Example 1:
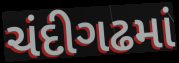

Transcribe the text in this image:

ચંદીગઢમાં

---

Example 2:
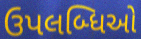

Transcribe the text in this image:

ઉપલબ્ધિઓ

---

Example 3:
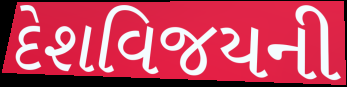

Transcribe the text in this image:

દેશવિજયની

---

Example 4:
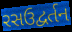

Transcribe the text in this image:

રસઉદ્વર્તન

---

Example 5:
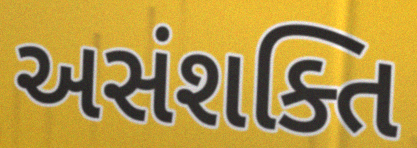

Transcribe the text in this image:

અસંશક્તિ